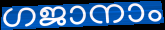
ഗജാനാം